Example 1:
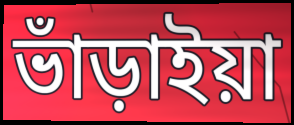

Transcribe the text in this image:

ভাঁড়াইয়া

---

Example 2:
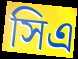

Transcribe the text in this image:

সিএ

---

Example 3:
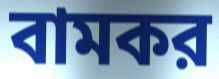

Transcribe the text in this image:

বামকর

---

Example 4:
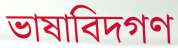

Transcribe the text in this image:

ভাষাবিদগণ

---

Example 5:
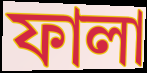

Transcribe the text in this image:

ফালা